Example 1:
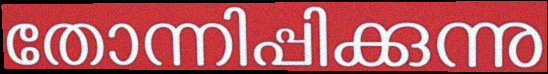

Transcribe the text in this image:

തോന്നിപ്പിക്കുന്നു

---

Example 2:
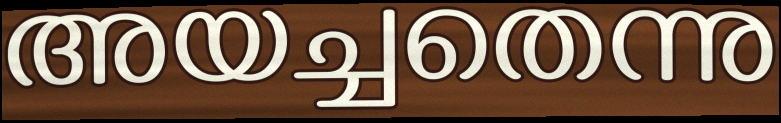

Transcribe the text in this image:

അയച്ചതെന്നു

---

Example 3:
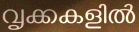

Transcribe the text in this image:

വൃക്കകളിൽ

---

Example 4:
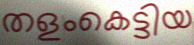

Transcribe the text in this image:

തളംകെട്ടിയ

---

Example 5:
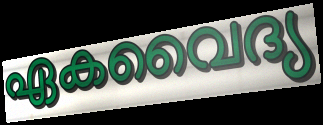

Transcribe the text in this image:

ഏകവൈദ്യ